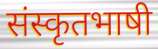
संस्कृतभाषी